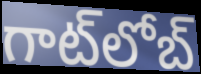
గాట్‍లోబ్